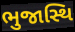
ભુજાસ્થિ